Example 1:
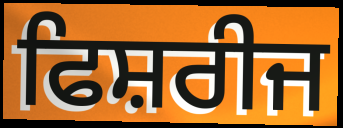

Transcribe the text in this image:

ਫਿਸ਼ਰੀਜ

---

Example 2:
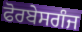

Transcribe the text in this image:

ਫੋਰਬੇਸਗੰਜ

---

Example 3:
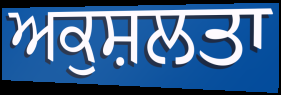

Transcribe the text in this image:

ਅਕੁਸ਼ਲਤਾ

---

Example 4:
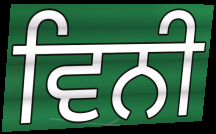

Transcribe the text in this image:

ਵਿਨੀ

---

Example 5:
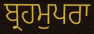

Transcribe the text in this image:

ਬ੍ਰਹਮੁਪਰਾ